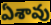
ఏశావు